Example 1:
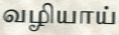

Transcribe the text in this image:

வழியாய்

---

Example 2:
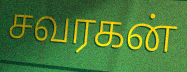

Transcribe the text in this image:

சவரகன்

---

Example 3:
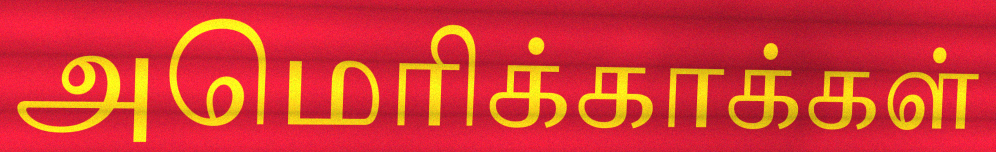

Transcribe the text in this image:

அமெரிக்காக்கள்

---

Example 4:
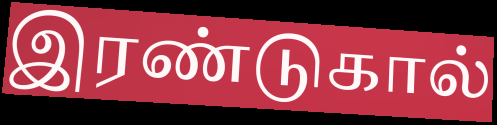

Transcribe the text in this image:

இரண்டுகால்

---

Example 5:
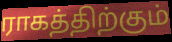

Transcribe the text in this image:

ராகத்திற்கும்